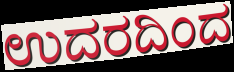
ಉದರದಿಂದ